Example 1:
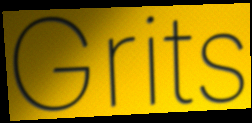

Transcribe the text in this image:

Grits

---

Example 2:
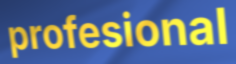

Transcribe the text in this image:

profesional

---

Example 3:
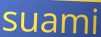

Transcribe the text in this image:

suami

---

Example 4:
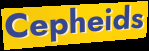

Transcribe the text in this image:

Cepheids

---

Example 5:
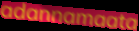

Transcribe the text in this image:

adannamaata